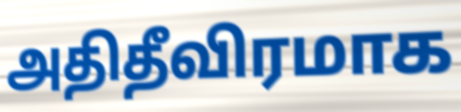
அதிதீவிரமாக